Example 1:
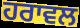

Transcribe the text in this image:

ਹਰਾਵਲ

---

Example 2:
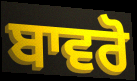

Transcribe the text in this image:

ਬਾਵਰੋ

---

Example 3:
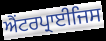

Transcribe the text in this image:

ਐਂਟਰਪ੍ਰਾਈਜਿਸ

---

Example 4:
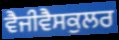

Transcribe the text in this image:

ਵੈਜੀਵੈਸਕੁਲਰ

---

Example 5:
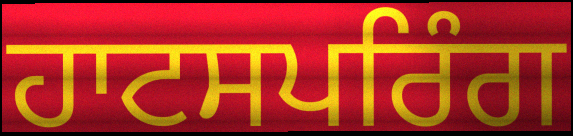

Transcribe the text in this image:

ਹਾਟਸਪਰਿੰਗ